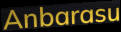
Anbarasu